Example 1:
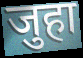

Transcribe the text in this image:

जुहा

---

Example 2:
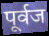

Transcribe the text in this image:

पूर्वज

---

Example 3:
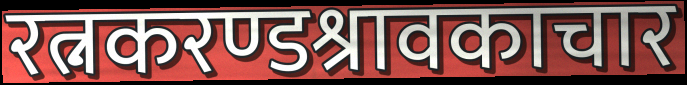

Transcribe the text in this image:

रत्नकरण्डश्रावकाचार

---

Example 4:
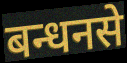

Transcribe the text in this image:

बन्धनसे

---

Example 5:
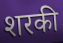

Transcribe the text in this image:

शरकी